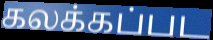
கலக்கப்பட